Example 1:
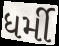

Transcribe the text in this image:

ધર્મી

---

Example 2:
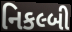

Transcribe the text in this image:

નિકલ્બી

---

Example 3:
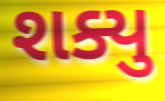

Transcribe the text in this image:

શક્યુ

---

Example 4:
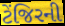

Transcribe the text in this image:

ટેંજિરની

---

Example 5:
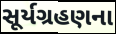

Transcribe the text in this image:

સૂર્યગ્રહણના